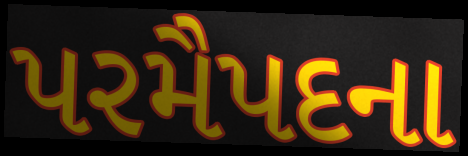
પરમૈપદના